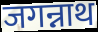
जगन्नाथ